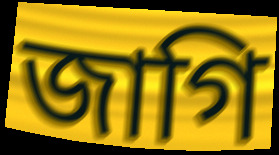
জাগি